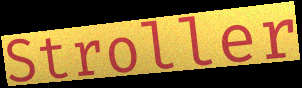
Stroller